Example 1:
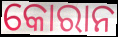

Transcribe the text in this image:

କୋରାନ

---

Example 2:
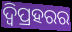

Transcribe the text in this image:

ଦ୍ବିପ୍ରହରର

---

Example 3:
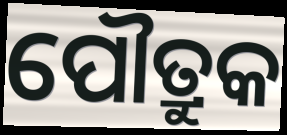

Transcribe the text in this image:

ପୌତ୍ରୁକ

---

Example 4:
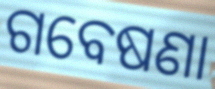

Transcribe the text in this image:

ଗବେଷଣା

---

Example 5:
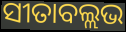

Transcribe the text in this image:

ସୀତାବଲ୍ଲଭ